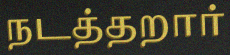
நடத்தறார்